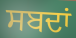
ਸਬਦਾਂ